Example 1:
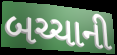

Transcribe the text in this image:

બચ્ચાની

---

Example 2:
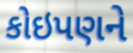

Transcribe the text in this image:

કોઇપણને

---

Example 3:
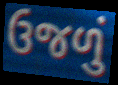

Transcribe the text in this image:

ઉજળું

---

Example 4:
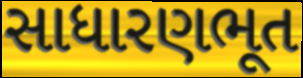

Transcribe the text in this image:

સાધારણભૂત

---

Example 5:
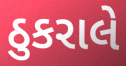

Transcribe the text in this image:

ઠુકરાલે